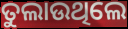
ତୁଲାଉଥିଲେ